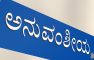
ಅನುವಂಶೀಯ